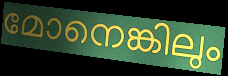
മോനെങ്കിലും